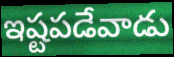
ఇష్టపడేవాడు